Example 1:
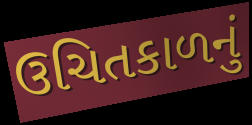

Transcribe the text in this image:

ઉચિતકાળનું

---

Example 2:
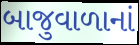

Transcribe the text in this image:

બાજુવાળાનાં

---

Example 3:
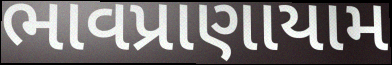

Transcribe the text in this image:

ભાવપ્રાણાયામ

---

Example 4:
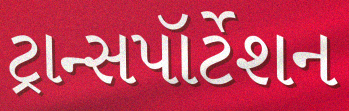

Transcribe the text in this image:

ટ્રાન્સપૉર્ટેશન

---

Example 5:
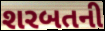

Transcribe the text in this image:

શરબતની